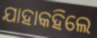
ଯାହାକହିଲେ